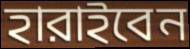
হারাইবেন